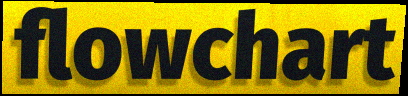
flowchart